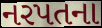
નરપતના